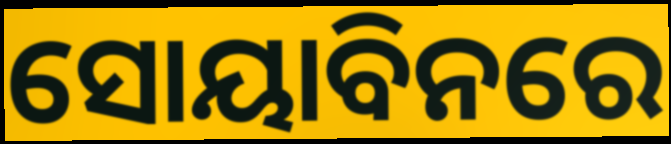
ସୋୟାବିନରେ